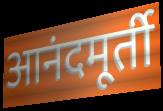
आनंदमूर्ती